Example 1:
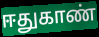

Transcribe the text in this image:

ஈதுகாண்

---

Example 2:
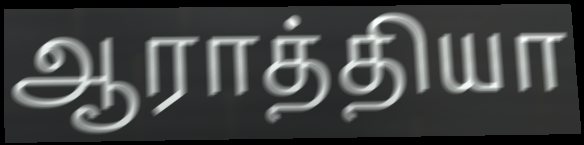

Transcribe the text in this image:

ஆராத்தியா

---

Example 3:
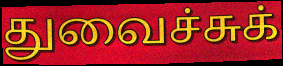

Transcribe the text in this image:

துவைச்சுக்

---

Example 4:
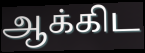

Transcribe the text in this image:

ஆக்கிட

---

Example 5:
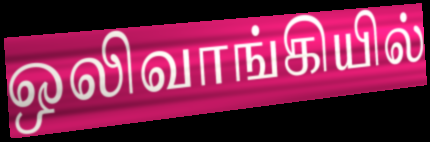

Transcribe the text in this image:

ஒலிவாங்கியில்